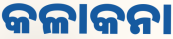
କଳାକନା